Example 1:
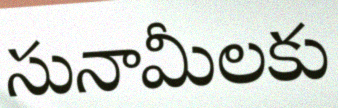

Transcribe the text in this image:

సునామీలకు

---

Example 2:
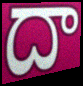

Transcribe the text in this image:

దా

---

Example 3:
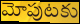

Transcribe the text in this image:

మోపుటకు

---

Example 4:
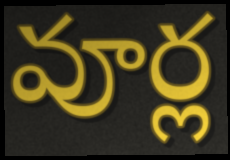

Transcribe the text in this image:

వూర్ల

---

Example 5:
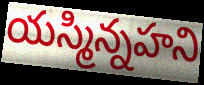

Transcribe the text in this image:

యస్మిన్నహని